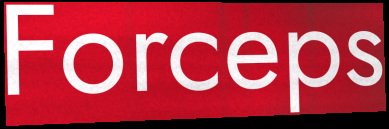
Forceps